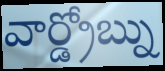
వార్డ్రోబ్ను